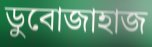
ডুবোজাহাজ